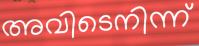
അവിടെനിന്ന്